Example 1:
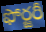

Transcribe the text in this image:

ఫోర్జరీ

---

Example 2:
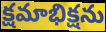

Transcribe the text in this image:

క్షమాభిక్షను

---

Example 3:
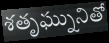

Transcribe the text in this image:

శతృఘ్నునితో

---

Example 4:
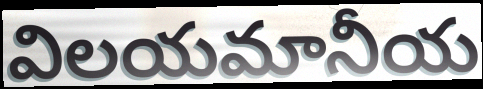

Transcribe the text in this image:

విలయమానీయ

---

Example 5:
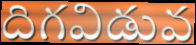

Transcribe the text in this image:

దిగవిడువ